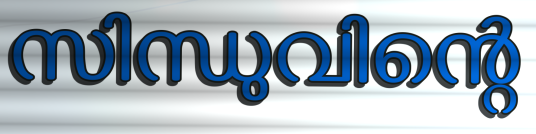
സിന്ധുവിന്റെ